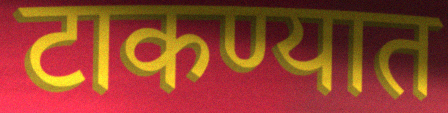
टाकण्यात